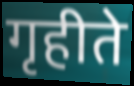
गृहीते